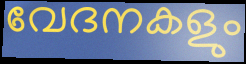
വേദനകളും